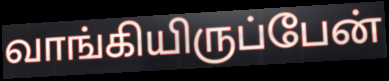
வாங்கியிருப்பேன்